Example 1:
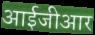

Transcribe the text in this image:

आईजीआर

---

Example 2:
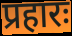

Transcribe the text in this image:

प्रहारः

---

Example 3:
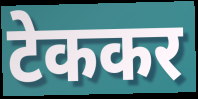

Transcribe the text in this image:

टेककर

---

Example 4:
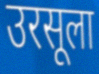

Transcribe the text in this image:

उरसूला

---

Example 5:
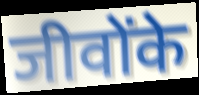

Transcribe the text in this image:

जीवोंके